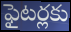
ఫైటర్లకు